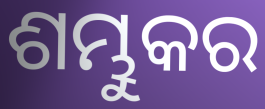
ଶମ୍ଭୁକର